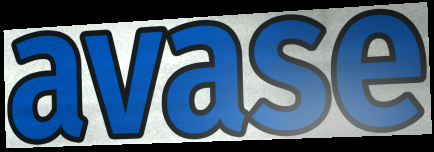
avase